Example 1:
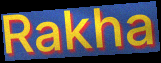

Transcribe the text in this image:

Rakha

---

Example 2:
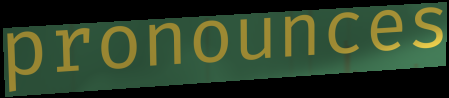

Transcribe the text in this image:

pronounces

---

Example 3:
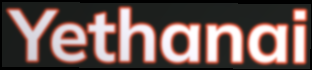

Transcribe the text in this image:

Yethanai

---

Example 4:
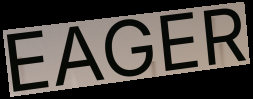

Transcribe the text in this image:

EAGER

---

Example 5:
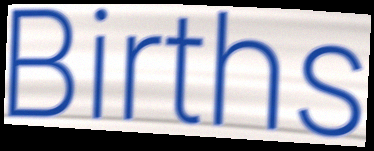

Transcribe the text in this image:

Births